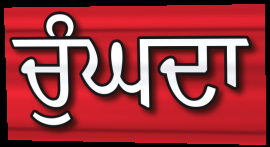
ਚੁੰਘਦਾ